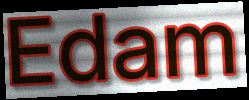
Edam